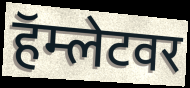
हॅम्लेटवर